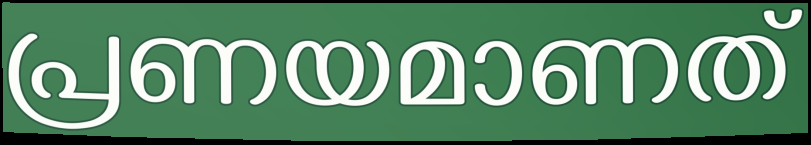
പ്രണയമാണത്